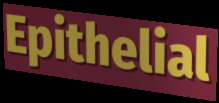
Epithelial